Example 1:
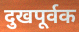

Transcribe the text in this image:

दुखपूर्वक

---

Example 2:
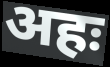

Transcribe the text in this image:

अहः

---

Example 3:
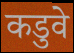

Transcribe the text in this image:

कडुवे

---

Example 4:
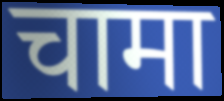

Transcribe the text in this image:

चामा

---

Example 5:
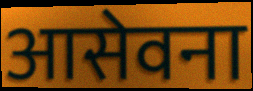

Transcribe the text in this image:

आसेवना